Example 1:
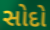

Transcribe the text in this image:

સોદો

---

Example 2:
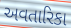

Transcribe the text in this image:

અવતારિકા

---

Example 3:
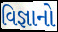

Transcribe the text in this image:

વિજ્ઞાનો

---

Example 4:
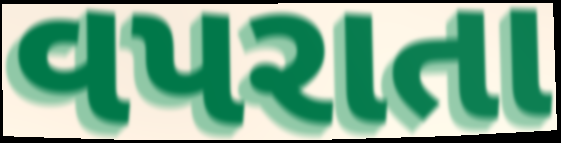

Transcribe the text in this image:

વપરાતા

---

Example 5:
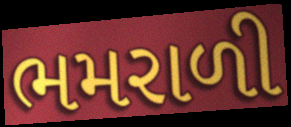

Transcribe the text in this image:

ભમરાળી